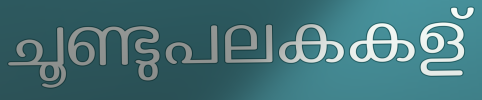
ചൂണ്ടുപലകകള്